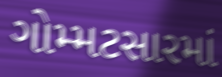
ગોમ્મટસારમાં